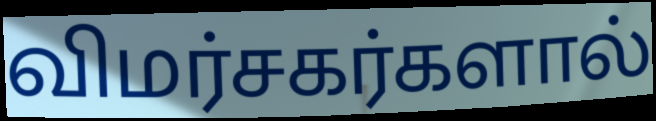
விமர்சகர்களால்